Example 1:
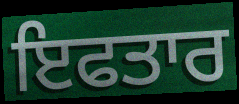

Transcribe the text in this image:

ਇਫਤਾਰ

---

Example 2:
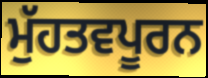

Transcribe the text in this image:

ਮੁੱਹਤਵਪੂਰਨ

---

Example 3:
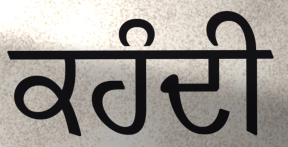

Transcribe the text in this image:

ਕਹੰਦੀ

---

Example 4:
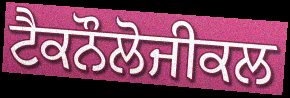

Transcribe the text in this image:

ਟੈਕਨੌਲੋਜੀਕਲ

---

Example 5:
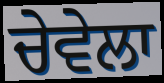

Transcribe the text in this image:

ਚੇਵੇਲਾ